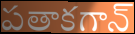
పతాకగాన్